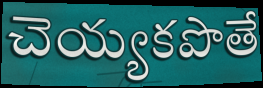
చెయ్యకపొతే